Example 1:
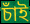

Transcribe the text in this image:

চাঁই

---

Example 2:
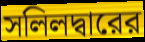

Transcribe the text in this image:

সলিলদ্বারের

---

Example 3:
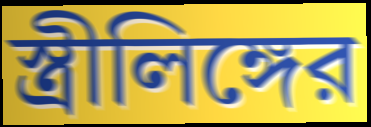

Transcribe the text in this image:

স্ত্রীলিঙ্গের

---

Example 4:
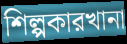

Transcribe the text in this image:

শিল্পকারখানা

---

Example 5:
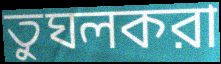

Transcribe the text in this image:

তুঘলকরা